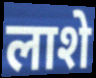
लाशे